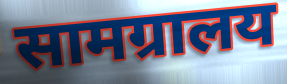
सामग्रालय